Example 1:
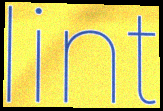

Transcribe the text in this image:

lint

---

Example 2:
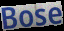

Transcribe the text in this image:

Bose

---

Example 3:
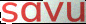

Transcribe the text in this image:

savu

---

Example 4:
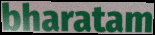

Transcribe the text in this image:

bharatam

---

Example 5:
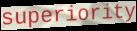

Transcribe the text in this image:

superiority